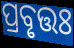
ପ୍ରବୃତ୍ତଃ